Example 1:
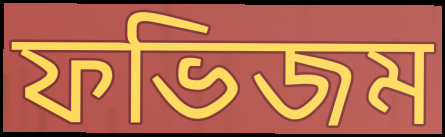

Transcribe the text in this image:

ফভিজম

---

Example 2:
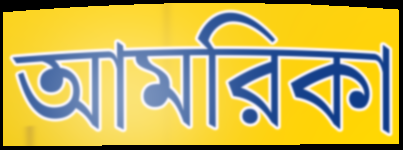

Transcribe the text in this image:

আমরিকা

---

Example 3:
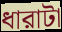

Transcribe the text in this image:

ধারাটা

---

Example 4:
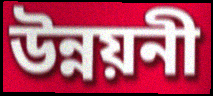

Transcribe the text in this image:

উন্নয়নী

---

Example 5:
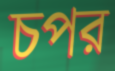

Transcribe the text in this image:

চপর